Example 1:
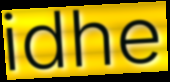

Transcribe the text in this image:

idhe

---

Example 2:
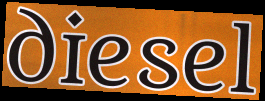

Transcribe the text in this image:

diesel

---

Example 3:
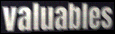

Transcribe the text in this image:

valuables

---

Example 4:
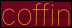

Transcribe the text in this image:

coffin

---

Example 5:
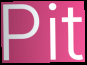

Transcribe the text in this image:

Pit